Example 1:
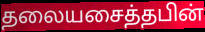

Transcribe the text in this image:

தலையசைத்தபின்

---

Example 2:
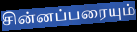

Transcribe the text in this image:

சின்னப்பரையும்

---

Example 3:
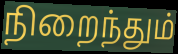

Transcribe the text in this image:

நிறைந்தும்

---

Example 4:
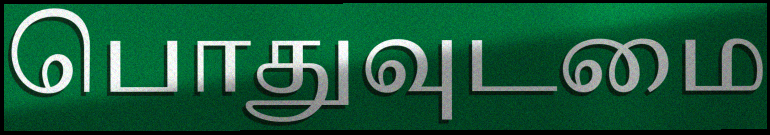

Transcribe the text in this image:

பொதுவுடமை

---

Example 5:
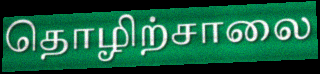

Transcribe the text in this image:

தொழிற்சாலை